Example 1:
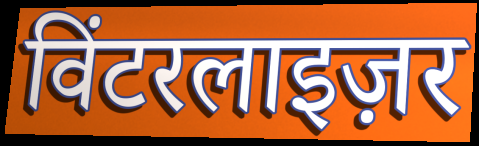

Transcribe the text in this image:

विंटरलाइज़र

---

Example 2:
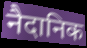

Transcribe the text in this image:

नैदानिक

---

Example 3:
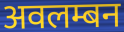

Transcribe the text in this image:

अवलम्बन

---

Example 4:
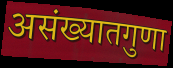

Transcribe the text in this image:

असंख्यातगुणा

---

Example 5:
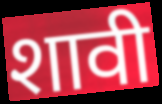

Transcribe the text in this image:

शावी